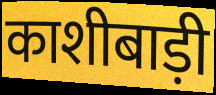
काशीबाड़ी